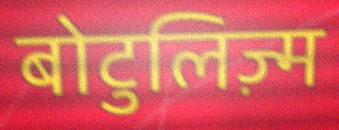
बोटुलिज़्म